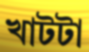
খাটটা